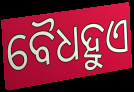
ବୈଧହୁଏ